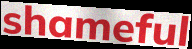
shameful